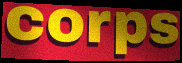
corps